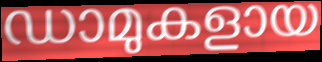
ഡാമുകളായ